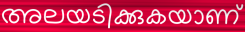
അലയടിക്കുകയാണ്